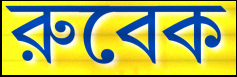
রুবেক